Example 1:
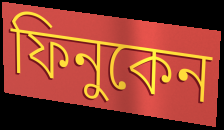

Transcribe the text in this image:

ফিনুকেন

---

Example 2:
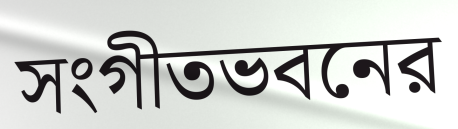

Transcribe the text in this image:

সংগীতভবনের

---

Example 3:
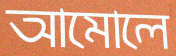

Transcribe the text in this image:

আমোলে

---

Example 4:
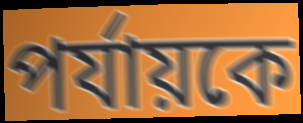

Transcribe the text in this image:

পর্যায়কে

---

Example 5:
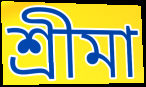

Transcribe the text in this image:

শ্রীমা